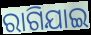
ରାଗିଯାଇ